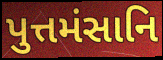
પુત્તમંસાનિ